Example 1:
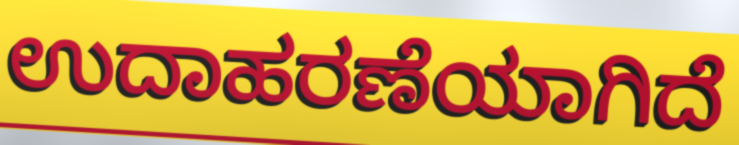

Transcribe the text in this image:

ಉದಾಹರಣೆಯಾಗಿದೆ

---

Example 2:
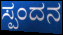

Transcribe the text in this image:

ಸ್ಪಂದನ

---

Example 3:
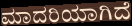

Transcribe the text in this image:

ಮಾದರಿಯಾಗಿದೆ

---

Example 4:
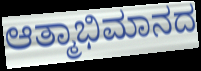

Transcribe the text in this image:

ಆತ್ಮಾಭಿಮಾನದ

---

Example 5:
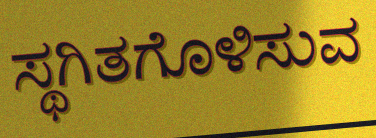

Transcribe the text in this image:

ಸ್ಥಗಿತಗೊಳಿಸುವ